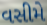
વસીમે